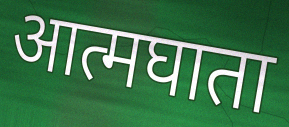
आत्मघाता